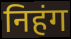
निहंग